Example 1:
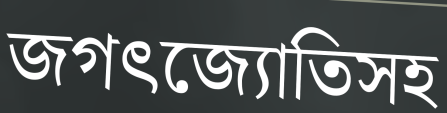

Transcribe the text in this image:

জগৎজ্যোতিসহ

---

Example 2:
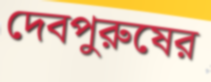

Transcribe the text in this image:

দেবপুরুষের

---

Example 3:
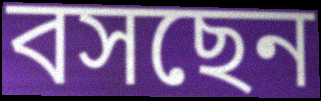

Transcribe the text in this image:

বসছেন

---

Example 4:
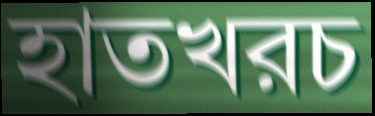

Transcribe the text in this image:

হাতখরচ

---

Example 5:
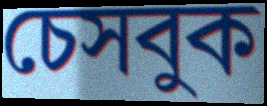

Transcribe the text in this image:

চেসবুক